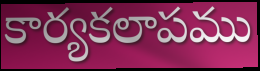
కార్యకలాపము